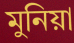
মুনিয়া